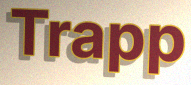
Trapp